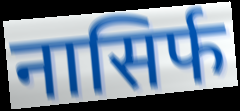
नासिर्फ